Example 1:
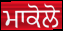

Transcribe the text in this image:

ਮਾਕੋਲੋ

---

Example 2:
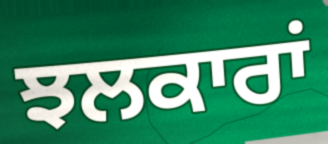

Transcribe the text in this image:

ਝਲਕਾਰਾਂ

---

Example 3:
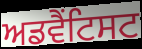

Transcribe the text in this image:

ਅਡਵੈਂਟਿਸਟ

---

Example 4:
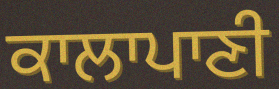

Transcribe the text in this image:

ਕਾਲਾਪਾਣੀ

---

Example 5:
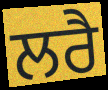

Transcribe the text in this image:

ਲਰੈ